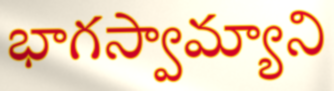
భాగస్వామ్యాని